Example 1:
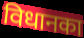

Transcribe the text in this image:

विधानका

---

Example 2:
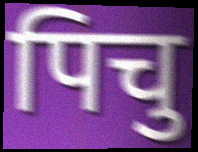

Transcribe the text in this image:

पिचु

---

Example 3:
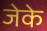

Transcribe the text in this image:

जेके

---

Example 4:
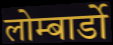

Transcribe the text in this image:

लोम्बार्डो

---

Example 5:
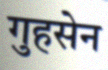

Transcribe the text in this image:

गुहसेन